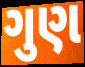
ગુણ